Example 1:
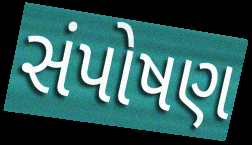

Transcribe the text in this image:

સંપોષણ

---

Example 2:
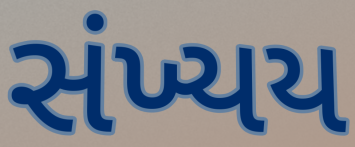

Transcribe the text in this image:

સંખ્યય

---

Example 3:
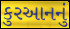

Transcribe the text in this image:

કુરઆનનું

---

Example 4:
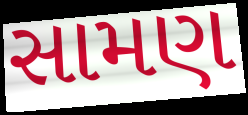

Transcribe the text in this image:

સામણ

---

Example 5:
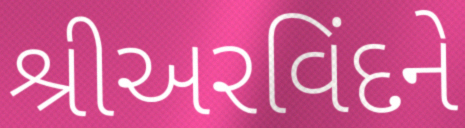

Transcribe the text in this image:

શ્રીઅરવિંદને